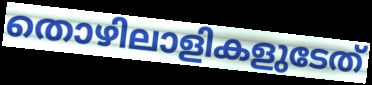
തൊഴിലാളികളുടേത്